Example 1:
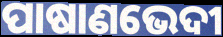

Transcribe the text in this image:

ପାଷାଣଭେଦୀ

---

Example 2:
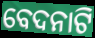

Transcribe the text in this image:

ବେଦନାଟି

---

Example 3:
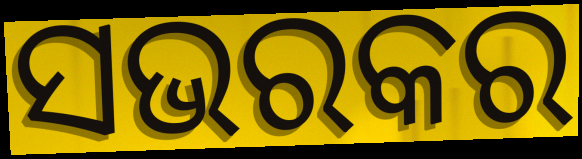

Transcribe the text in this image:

ସଭରକର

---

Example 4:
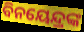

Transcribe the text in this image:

ବିନୟେନ୍ଦ୍ରଙ୍କ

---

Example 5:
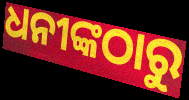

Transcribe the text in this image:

ଧନୀଙ୍କଠାରୁ